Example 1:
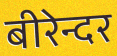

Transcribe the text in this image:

बीरेन्दर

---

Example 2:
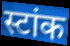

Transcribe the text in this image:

स्टांक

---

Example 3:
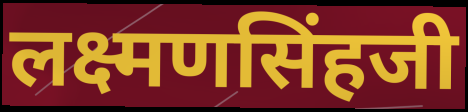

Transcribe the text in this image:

लक्ष्मणसिंहजी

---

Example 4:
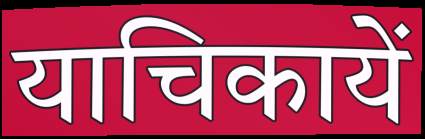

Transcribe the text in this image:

याचिकायें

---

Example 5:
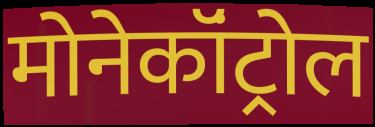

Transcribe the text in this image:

मोनेकॉंट्रोल